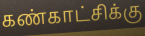
கண்காட்சிக்கு